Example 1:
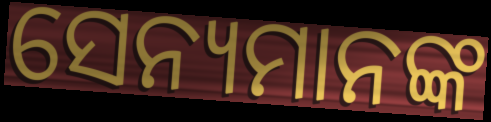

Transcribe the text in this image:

ସେନ୍ୟମାନଙ୍କ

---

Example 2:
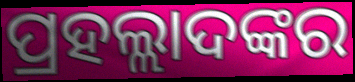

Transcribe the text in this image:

ପ୍ରହଲ୍ଲାଦଙ୍କର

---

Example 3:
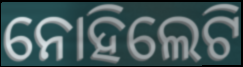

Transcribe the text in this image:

ନୋହିଲେଟି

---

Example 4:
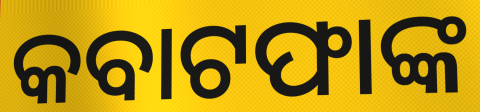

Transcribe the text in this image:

କବାଟଫାଙ୍କ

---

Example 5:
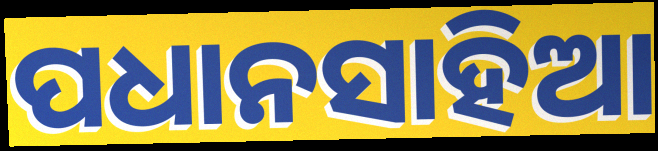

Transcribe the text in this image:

ପଧାନସାହିଆ